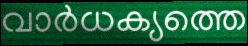
വാർധക്യത്തെ